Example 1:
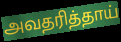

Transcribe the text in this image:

அவதரித்தாய்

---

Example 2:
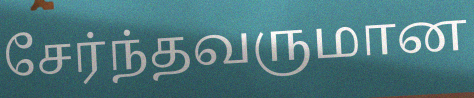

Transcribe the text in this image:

சேர்ந்தவருமான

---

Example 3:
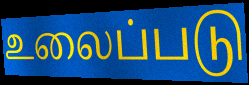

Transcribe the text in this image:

உலைப்படு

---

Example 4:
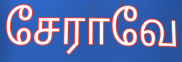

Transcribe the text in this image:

சேராவே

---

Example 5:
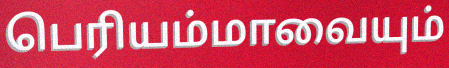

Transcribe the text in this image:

பெரியம்மாவையும்